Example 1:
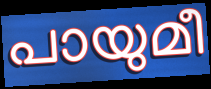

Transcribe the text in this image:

പായുമീ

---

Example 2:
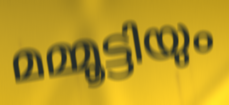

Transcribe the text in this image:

മമ്മൂട്ടിയും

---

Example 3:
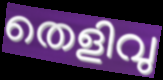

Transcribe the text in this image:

തെളിവു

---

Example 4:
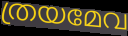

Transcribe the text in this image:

ത്രയമേവ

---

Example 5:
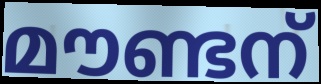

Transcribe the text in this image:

മൗണ്ടന്